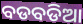
ବଡବଡିଆ